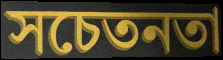
সচেতনতা